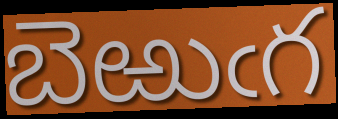
బెఱుఁగ